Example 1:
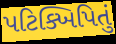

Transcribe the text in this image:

પટિક્ખિપિતું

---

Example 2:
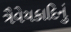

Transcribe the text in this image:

ત્રૈવેયકાદિનું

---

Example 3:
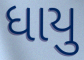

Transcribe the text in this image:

ધાયુ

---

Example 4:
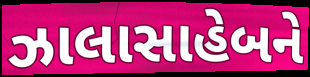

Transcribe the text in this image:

ઝાલાસાહેબને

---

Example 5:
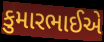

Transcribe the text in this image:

કુમારભાઈએ